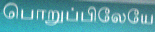
பொறுப்பிலேயே